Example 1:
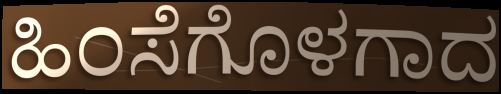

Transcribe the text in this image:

ಹಿಂಸೆಗೊಳಗಾದ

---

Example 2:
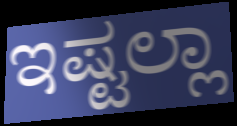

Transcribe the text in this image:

ಇಷ್ಟಲ್ಲಾ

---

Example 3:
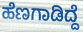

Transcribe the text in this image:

ಹೆಣಗಾಡಿದ್ದೆ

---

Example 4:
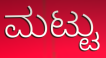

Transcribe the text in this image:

ಮಟ್ಟು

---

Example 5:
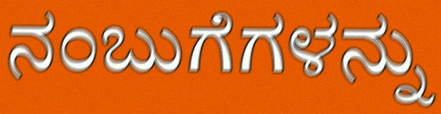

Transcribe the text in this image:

ನಂಬುಗೆಗಳನ್ನು